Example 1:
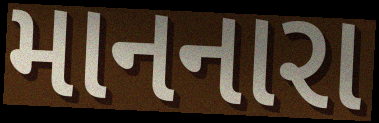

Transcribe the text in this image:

માનનારા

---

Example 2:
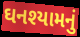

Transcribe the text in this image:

ઘનશ્યામનું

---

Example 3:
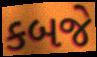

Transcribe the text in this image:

કબજે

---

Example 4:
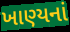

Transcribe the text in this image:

ખાણ્યનાં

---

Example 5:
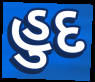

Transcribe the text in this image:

હુદ